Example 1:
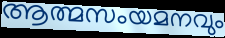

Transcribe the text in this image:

ആത്മസംയമനവും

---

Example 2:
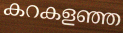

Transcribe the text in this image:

കറകളഞ്ഞ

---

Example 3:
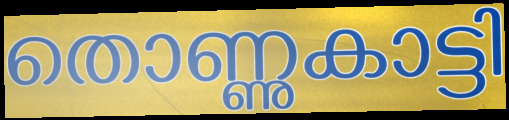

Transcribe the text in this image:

തൊണ്ണുകാട്ടി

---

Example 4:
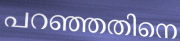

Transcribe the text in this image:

പറഞ്ഞതിനെ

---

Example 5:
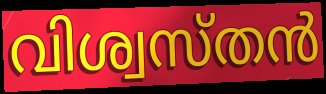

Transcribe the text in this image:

വിശ്വസ്തൻ